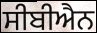
ਸੀਬੀਐਨ